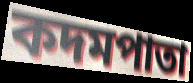
কদমপাতা